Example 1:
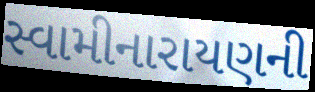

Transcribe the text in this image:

સ્વામીનારાયણની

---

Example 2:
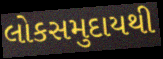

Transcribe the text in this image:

લોકસમુદાયથી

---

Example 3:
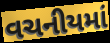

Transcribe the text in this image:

વચનીયમાં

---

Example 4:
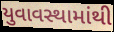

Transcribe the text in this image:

યુવાવસ્થામાંથી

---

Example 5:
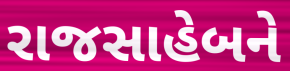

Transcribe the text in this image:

રાજસાહેબને